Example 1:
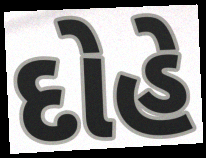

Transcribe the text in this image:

દોહે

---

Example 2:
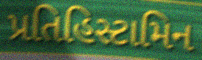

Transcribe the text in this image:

પ્રતિહિસ્ટામિન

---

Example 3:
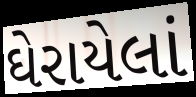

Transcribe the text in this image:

ઘેરાયેલાં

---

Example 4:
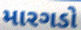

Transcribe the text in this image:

મારગડો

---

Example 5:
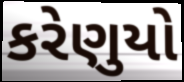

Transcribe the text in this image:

કરેણુયો